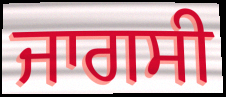
ਜਾਗਸੀ